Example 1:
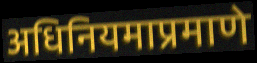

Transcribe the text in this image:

अधिनियमाप्रमाणे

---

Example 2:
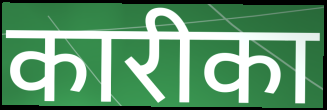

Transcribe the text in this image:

कारीका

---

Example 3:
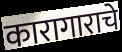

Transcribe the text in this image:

कारागाराचे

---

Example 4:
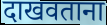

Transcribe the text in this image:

दाखवताना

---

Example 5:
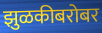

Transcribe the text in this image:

झुळकीबरोबर